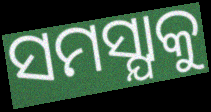
ସମସ୍ଯାକୁ